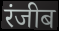
रंजीब